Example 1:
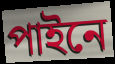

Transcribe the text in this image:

পাইনে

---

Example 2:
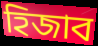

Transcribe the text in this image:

হিজাব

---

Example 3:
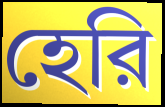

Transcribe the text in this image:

হেরি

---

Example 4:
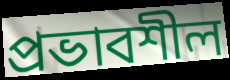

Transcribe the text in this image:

প্রভাবশীল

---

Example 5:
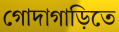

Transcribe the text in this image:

গোদাগাড়িতে